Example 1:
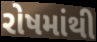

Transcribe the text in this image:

રોષમાંથી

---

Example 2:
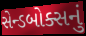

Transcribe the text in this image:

સેન્ડબોક્સનું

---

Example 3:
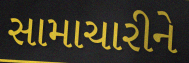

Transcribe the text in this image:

સામાચારીને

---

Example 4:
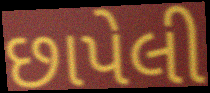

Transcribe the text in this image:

છાપેલી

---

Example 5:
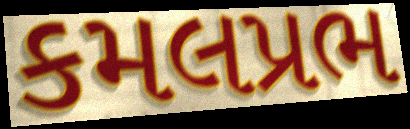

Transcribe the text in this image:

કમલપ્રભ